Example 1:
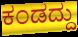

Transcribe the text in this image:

ಕಂಡದ್ದು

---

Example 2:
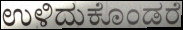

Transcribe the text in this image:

ಉಳಿದುಕೊಂಡರೆ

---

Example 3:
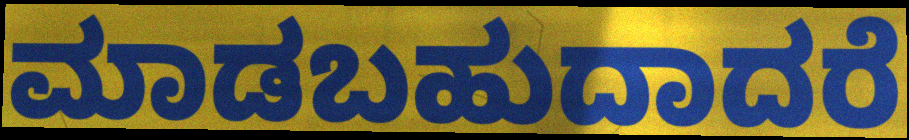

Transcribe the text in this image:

ಮಾಡಬಹುದಾದರೆ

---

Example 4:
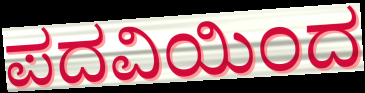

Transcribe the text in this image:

ಪದವಿಯಿಂದ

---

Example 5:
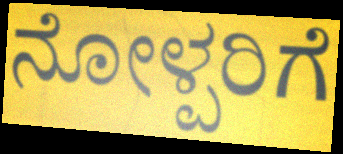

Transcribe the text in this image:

ನೋಳ್ಪರಿಗೆ